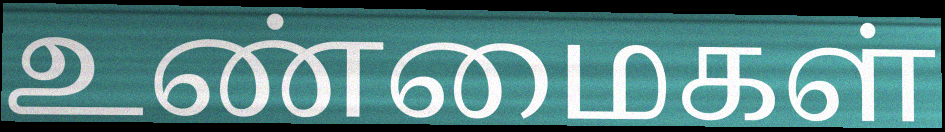
உண்மைகள்